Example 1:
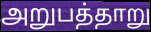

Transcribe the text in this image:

அறுபத்தாறு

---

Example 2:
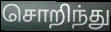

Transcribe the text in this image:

சொறிந்து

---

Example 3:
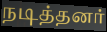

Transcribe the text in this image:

நடித்தனர்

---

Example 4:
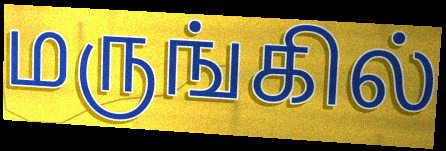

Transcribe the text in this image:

மருங்கில்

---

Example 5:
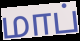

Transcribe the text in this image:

மாப்